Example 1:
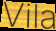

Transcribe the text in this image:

Vila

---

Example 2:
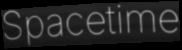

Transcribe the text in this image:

Spacetime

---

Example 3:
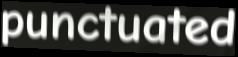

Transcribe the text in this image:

punctuated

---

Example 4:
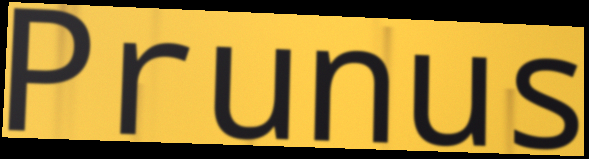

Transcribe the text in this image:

Prunus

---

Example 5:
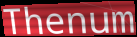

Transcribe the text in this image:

Thenum